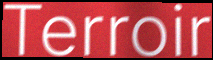
Terroir